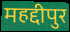
महद्दीपुर